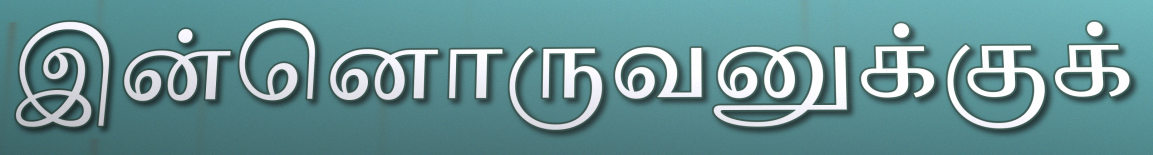
இன்னொருவனுக்குக்